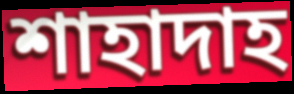
শাহাদাহ